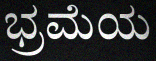
ಭ್ರಮೆಯ